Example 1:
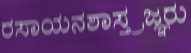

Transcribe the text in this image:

ರಸಾಯನಶಾಸ್ತ್ರಜ್ಞರು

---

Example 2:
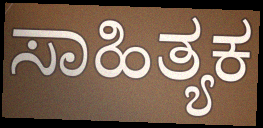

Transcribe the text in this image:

ಸಾಹಿತ್ಯಕ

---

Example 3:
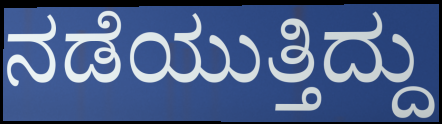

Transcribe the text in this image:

ನಡೆಯುತ್ತಿದ್ದು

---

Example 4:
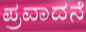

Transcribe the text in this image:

ಪ್ರವಾದನೆ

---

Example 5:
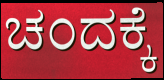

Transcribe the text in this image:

ಚಂದಕ್ಕೆ